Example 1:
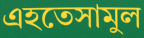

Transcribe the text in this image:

এহতেসামুল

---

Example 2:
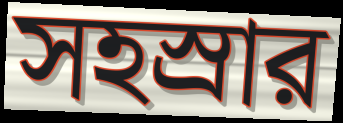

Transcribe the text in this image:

সহস্রার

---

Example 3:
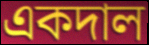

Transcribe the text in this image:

একদাল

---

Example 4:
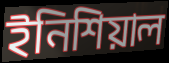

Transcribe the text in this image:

ইনিশিয়াল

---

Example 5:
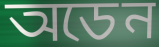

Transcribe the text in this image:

অডেন